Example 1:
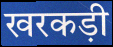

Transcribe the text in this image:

खरकड़ी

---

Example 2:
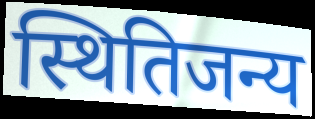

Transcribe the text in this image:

स्थितिजन्य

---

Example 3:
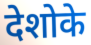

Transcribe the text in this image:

देशोके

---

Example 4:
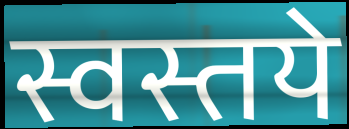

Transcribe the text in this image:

स्वस्तये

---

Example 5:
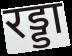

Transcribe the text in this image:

रड्डा